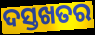
ଦସ୍ତଖତର